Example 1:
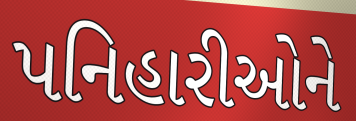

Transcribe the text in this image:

પનિહારીઓને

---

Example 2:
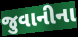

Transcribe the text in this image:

જુવાનીના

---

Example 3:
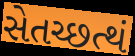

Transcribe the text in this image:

સેતચ્છત્થં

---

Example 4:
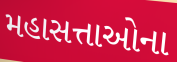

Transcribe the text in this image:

મહાસત્તાઓના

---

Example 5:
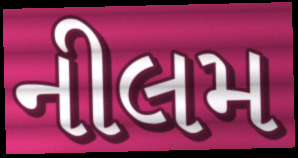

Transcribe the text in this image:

નીલમ